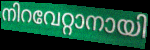
നിറവേറ്റാനായി